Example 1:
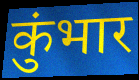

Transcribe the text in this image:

कुंभार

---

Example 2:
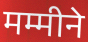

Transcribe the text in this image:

मम्मीने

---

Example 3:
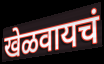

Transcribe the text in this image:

खेळवायचं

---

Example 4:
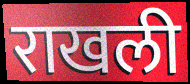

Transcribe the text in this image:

राखली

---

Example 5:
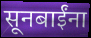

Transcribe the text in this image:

सूनबाईंना